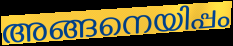
അങ്ങനെയിപ്പം